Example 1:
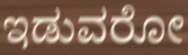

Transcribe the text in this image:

ಇಡುವರೋ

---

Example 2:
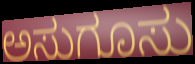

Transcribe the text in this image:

ಅಸುಗೂಸು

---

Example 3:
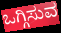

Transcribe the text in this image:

ಒಗ್ಗಿಸುವ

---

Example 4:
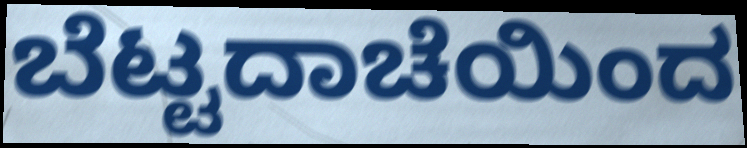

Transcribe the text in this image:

ಬೆಟ್ಟದಾಚೆಯಿಂದ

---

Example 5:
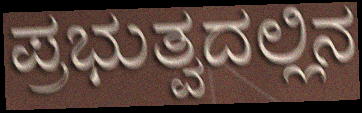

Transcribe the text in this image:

ಪ್ರಭುತ್ವದಲ್ಲಿನ